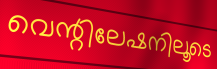
വെന്റിലേഷനിലൂടെ